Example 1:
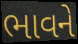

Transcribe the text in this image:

ભાવને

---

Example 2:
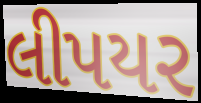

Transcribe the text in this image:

લીપયર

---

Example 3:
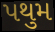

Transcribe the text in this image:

પથુમ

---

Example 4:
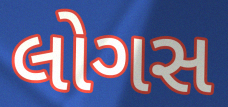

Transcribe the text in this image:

લોગસ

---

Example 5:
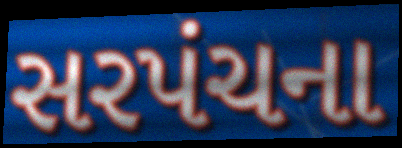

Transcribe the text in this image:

સરપંચના